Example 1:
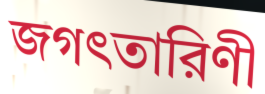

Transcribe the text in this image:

জগৎতারিণী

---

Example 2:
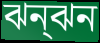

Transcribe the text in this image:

ঝন্ঝন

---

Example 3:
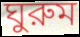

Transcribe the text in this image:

ঘুরুম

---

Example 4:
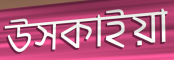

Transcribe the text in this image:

উসকাইয়া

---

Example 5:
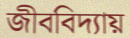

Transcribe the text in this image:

জীববিদ্যায়